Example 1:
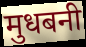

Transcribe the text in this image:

मुधबनी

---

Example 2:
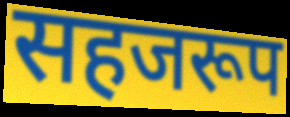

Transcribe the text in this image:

सहजरूप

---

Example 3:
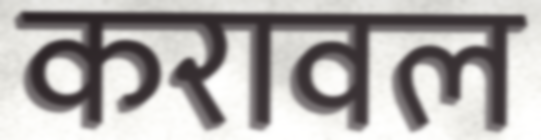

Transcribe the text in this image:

करावल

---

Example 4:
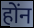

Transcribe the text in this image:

होंन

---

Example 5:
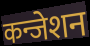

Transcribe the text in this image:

कन्जेशन